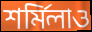
শর্মিলাও